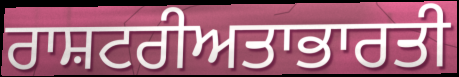
ਰਾਸ਼ਟਰੀਅਤਾਭਾਰਤੀ